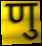
णु